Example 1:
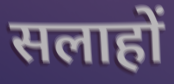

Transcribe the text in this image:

सलाहों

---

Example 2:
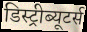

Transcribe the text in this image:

डिस्ट्रीब्यूटर्स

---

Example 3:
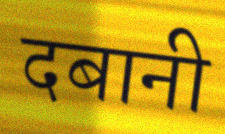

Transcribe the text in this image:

दबानी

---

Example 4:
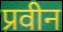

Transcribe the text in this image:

प्रवीन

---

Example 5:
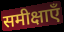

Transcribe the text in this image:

समीक्षाएँ